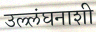
उल्लंघनाशी